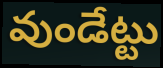
వుండేట్టు